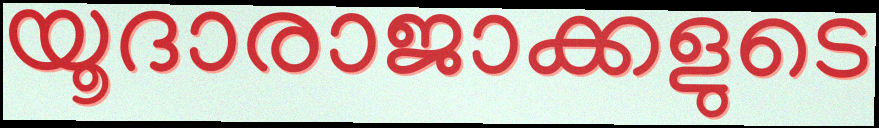
യൂദാരാജാക്കളുടെ